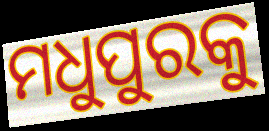
ମଧୁପୁରକୁ